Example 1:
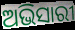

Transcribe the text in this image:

ଅଭିସାରୀ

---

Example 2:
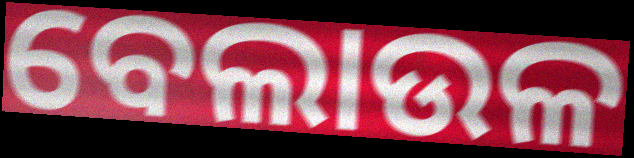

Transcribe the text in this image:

ବେଲାଉଳ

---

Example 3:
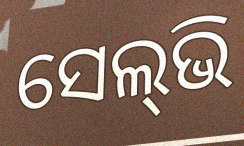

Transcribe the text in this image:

ସେଲ୍‌ଭି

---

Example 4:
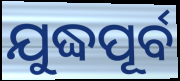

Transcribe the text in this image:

ଯୁଦ୍ଧପୂର୍ବ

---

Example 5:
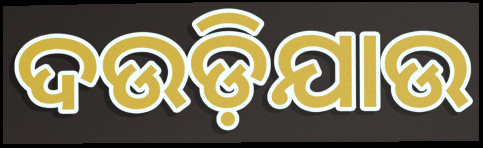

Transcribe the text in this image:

ଦଉଡ଼ିଯାଉ